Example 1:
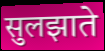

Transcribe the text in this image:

सुलझाते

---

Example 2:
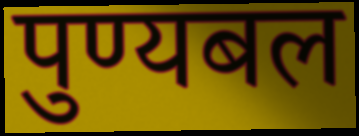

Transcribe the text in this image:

पुण्यबल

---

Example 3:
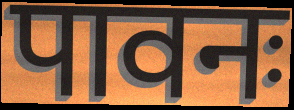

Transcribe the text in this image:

पावनः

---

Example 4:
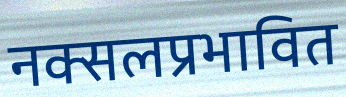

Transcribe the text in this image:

नक्सलप्रभावित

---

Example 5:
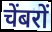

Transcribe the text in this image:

चेंबरों